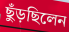
ছুঁড়ছিলেন